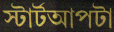
স্টার্টআপটা